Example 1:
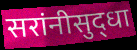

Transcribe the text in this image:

सरांनीसुद्धा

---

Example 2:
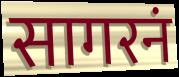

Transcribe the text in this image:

सागरनं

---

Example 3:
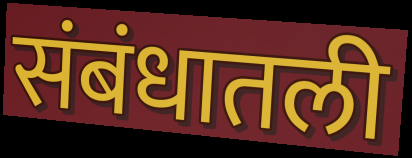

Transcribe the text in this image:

संबंधातली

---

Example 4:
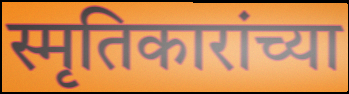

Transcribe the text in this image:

स्मृतिकारांच्या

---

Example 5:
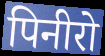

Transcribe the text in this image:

पिनीरो